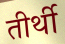
तीर्थी